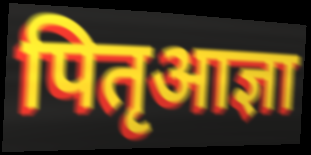
पितृआज्ञा